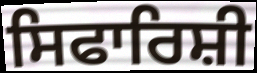
ਸਿਫਾਰਿਸ਼ੀ